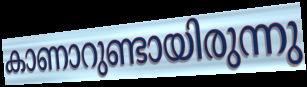
കാണാറുണ്ടായിരുന്നു